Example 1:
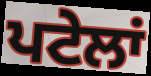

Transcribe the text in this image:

ਪਟੇਲਾਂ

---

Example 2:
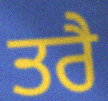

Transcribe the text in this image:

ਤਰੈ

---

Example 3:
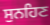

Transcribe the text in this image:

ਸੁਨਹਿਣ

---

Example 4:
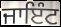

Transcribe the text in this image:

ਜਾਇੰਟ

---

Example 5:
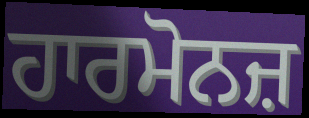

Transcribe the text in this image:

ਹਾਰਮੋਨਜ਼